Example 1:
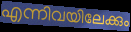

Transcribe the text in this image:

എന്നിവയിലേക്കും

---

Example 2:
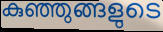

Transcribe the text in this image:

കുഞ്ഞുങ്ങളുടെ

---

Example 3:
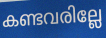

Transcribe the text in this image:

കണ്ടവരില്ലേ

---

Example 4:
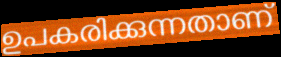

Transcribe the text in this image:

ഉപകരിക്കുന്നതാണ്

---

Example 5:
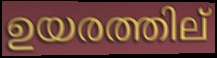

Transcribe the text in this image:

ഉയരത്തില്